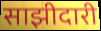
साझीदारी